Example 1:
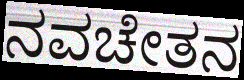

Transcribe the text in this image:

ನವಚೇತನ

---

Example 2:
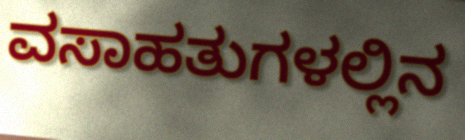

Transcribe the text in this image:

ವಸಾಹತುಗಳಲ್ಲಿನ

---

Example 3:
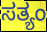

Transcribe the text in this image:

ಸತ್ಯಂ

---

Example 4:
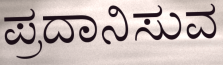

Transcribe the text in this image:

ಪ್ರದಾನಿಸುವ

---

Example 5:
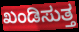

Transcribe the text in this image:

ಖಂಡಿಸುತ್ತ